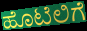
ಹೊಟೆಲಿಗೆ